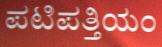
ಪಟಿಪತ್ತಿಯಂ